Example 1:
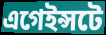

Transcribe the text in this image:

এগেইন্সটে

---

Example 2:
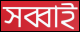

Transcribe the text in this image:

সব্বাই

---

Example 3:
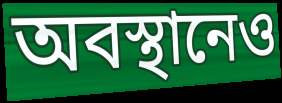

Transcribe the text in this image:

অবস্থানেও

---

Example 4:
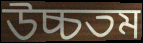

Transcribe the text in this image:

উচ্চতম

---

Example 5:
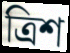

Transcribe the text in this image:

ত্রিশ